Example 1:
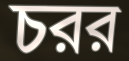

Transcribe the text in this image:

চরর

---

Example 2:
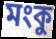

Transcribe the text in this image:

মংকু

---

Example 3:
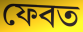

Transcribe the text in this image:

ফেবত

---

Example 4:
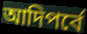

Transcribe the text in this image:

আদিপর্বে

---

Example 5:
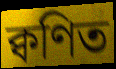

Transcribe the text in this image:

ক্বণিত